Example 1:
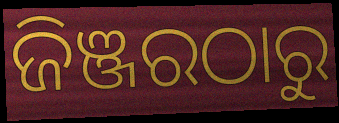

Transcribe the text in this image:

ଜିଞ୍ଜରଠାରୁ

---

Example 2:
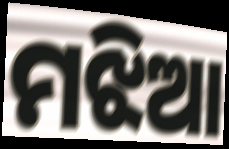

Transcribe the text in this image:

ମଝିଆ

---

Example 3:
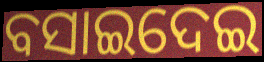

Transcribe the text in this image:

ବସାଇଦେଇ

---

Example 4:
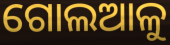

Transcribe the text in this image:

ଗୋଲଆଳୁ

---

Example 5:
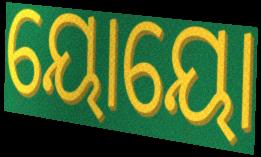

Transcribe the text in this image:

ୟୋୟୋ